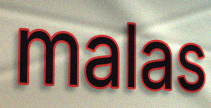
malas